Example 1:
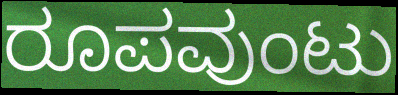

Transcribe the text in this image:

ರೂಪವುಂಟು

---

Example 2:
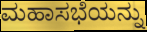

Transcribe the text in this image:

ಮಹಾಸಭೆಯನ್ನು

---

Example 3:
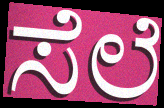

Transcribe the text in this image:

ಸೆಲೆ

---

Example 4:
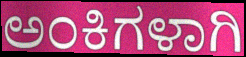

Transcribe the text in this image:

ಅಂಕಿಗಳಾಗಿ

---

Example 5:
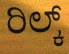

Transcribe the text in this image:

ರಿಲ್ಕ್